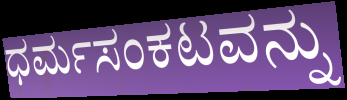
ಧರ್ಮಸಂಕಟವನ್ನು